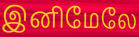
இனிமேலே